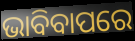
ଭାବିବାପରେ